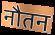
नौतन